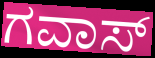
ಗವಾಸ್